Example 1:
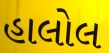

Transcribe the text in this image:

હાલોલ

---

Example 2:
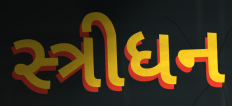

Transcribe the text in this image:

સ્ત્રીધન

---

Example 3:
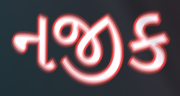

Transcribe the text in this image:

નજીક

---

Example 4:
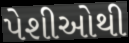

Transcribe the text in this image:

પેશીઓથી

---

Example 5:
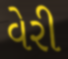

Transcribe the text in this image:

વેરી